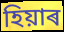
হিয়াৰ